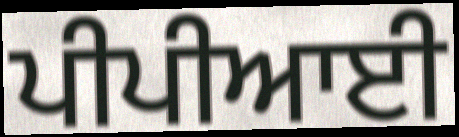
ਪੀਪੀਆਈ